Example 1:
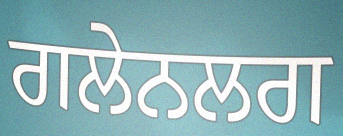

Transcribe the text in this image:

ਗਲੇਨਲਗ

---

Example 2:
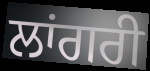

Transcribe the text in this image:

ਲਾਂਗਰੀ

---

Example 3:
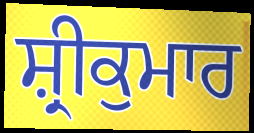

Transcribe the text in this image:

ਸ਼੍ਰੀਕੁਮਾਰ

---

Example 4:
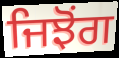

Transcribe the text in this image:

ਜਿਝੋਂਗ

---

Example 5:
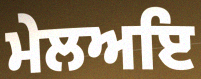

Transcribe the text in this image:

ਮੇਲਅਇ